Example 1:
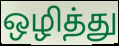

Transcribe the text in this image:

ஒழித்து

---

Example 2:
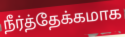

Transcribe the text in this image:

நீர்த்தேக்கமாக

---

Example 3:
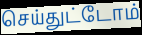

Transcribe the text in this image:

செய்துட்டோம்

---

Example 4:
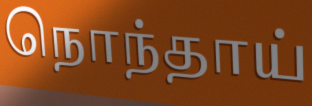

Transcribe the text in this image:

நொந்தாய்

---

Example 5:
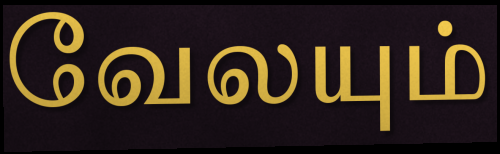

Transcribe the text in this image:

வேலயும்